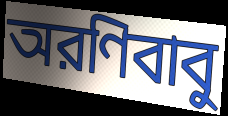
অরণিবাবু